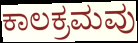
ಕಾಲಕ್ರಮವು